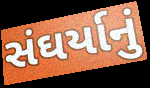
સંઘર્યાનું